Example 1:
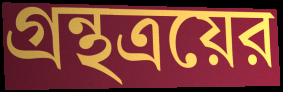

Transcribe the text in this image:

গ্রন্থত্রয়ের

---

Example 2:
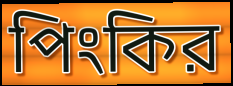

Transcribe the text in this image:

পিংকির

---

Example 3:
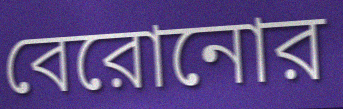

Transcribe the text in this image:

বেরোনোর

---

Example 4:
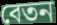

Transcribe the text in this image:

বেতন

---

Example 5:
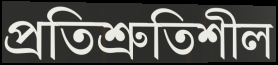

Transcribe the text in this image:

প্রতিশ্রুতিশীল